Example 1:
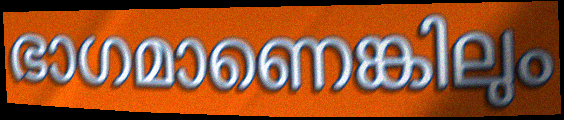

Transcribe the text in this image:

ഭാഗമാണെങ്കിലും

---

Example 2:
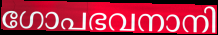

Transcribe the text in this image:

ഗോപഭവനാനി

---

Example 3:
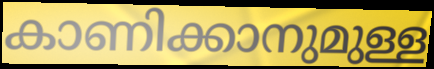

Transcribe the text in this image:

കാണിക്കാനുമുള്ള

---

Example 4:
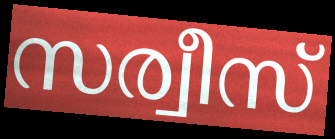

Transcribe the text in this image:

സര്വീസ്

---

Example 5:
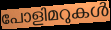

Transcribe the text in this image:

പോളിമറുകൾ